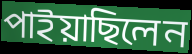
পাইয়াছিলেন